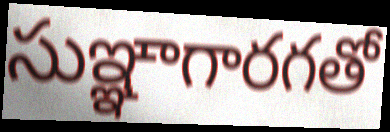
సుఞ్ఞాగారగతో